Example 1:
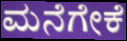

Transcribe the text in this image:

ಮನೆಗೇಕೆ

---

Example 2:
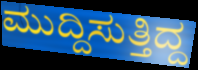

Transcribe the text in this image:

ಮುದ್ದಿಸುತ್ತಿದ್ದ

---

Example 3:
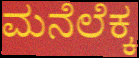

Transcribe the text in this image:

ಮನೆಲೆಕ್ಕ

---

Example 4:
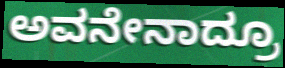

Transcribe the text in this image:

ಅವನೇನಾದ್ರೂ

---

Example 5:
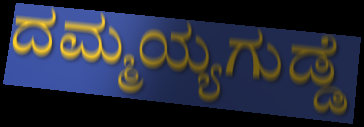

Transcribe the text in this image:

ದಮ್ಮಯ್ಯಗುಡ್ಡೆ